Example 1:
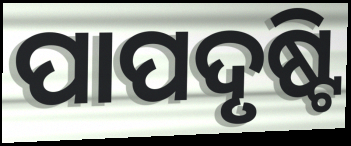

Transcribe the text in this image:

ପାପଦୃଷ୍ଟି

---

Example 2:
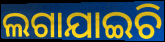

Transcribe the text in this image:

ଲଗାଯାଇଚି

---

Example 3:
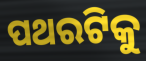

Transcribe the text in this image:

ପଥରଟିକୁ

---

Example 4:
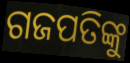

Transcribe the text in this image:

ଗଜପତିଙ୍କୁ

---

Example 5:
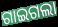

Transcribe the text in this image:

ଗାଇଗଲା